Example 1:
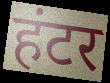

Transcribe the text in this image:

हंटर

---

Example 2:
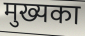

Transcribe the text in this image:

मुख्यका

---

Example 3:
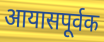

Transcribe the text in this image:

आयासपूर्वक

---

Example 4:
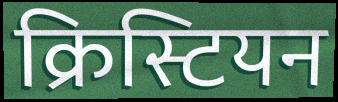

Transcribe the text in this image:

क्रिस्टियन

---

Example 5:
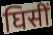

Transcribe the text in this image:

घिसीं